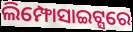
ଲିମ୍ଫୋସାଇଟ୍ସରେ